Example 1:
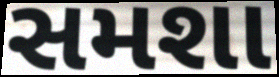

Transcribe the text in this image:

સમશા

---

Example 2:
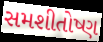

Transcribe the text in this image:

સમશીતોષ્ણ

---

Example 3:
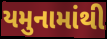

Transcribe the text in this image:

યમુનામાંથી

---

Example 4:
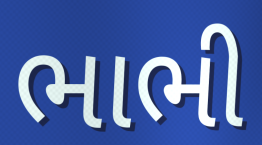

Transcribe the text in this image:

ભાભી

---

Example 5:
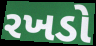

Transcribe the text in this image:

રખડો